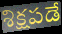
శిక్షపడే